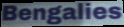
Bengalies